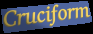
Cruciform